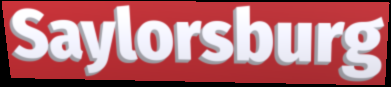
Saylorsburg